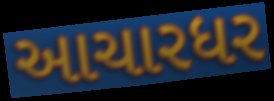
આચારધર